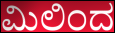
ಮಿಲಿಂದ